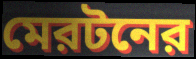
মেরটনের